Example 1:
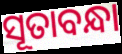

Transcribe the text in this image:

ସୂତାବନ୍ଧା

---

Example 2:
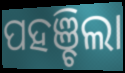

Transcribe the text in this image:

ପହଞ୍ଚିଲା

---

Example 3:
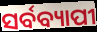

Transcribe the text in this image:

ସର୍ବବ୍ୟାପୀ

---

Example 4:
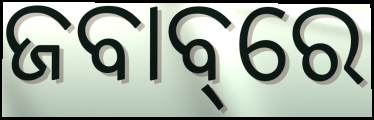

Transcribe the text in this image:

ଜବାବ୍‌ରେ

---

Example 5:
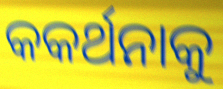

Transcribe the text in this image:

କକର୍ଥନାକୁ